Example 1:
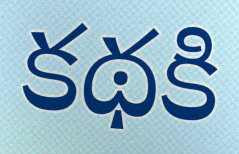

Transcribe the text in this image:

కథకి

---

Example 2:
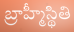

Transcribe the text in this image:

బ్రాహ్మీస్థితి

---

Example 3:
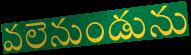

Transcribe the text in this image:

వలెనుండును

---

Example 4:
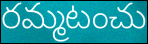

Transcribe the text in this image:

రమ్మటంచు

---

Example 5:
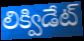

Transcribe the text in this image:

లిక్విడేట్